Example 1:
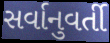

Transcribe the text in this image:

સર્વાનુવર્તી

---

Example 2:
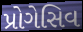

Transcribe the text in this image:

પ્રોગેસિવ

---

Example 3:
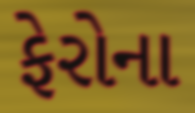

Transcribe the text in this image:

ફેરોના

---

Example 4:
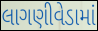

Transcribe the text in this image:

લાગણીવેડામાં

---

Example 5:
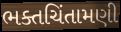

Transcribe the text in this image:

ભક્તચિંતામણી